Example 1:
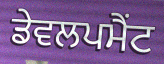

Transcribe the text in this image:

ਡੇਵਲਪਮੈਂਟ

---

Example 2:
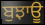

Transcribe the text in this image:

ਬੁਝਾਊ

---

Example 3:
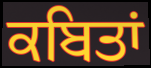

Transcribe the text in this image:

ਕਬਿਤਾਂ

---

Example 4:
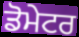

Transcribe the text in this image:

ਡੋਮੇਟਰ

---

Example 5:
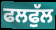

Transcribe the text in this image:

ਫਲਫੁੱਲ